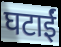
घटाईं